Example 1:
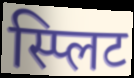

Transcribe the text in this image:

स्प्लिट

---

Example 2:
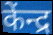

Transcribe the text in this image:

केंन्द्र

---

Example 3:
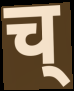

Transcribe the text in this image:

च्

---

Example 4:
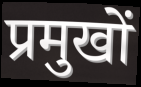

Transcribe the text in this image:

प्रमुखों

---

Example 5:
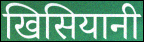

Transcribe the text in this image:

खिसियानी